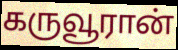
கருவூரான்